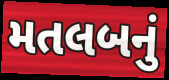
મતલબનું